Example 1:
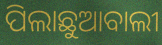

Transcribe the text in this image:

ପିଲାଛୁଆବାଲୀ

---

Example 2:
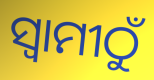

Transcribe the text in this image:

ସ୍ୱାମୀଠୁଁ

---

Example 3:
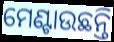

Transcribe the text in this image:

ମେଣ୍ଟାଉଛନ୍ତି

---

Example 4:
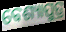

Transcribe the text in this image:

ବେଶ୍ୟାପୁତ୍ର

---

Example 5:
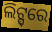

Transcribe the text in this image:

ଲିଟ୍ସ୍‌ରେ